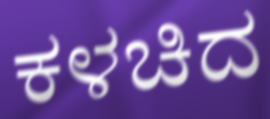
ಕಳಚಿದ